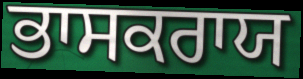
ਭਾਸਕਰਾਯ